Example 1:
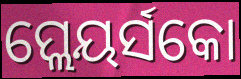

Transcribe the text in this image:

ପ୍ଲେୟର୍ସକୋ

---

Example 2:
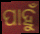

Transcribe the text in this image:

ପାହୁଁ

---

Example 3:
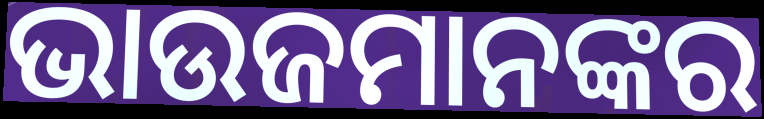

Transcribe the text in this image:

ଭାଉଜମାନଙ୍କର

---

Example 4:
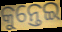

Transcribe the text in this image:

କୁନ୍ତେଇ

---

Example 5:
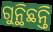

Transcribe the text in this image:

ଗୁନ୍ଥିଛନ୍ତି